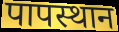
पापस्थान